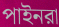
পাইনরা